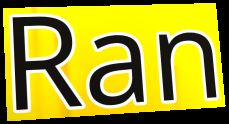
Ran